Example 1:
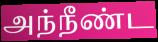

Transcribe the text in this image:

அந்நீண்ட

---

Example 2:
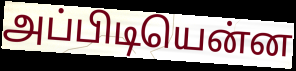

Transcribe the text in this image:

அப்பிடியென்ன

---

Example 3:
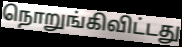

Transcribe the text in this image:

நொறுங்கிவிட்டது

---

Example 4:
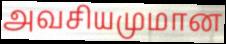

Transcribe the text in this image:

அவசியமுமான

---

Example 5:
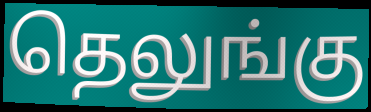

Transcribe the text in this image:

தெலுங்கு